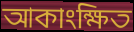
আকাংক্ষিত